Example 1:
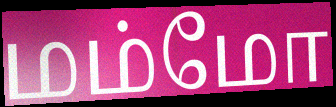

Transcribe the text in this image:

மம்மோ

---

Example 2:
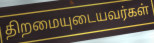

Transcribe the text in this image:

திறமையுடையவர்கள்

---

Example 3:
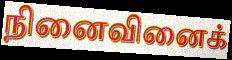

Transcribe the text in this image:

நினைவினைக்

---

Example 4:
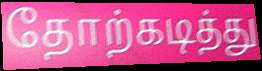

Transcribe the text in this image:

தோற்கடித்து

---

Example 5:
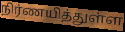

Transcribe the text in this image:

நிர்ணயித்துள்ள